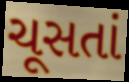
ચૂસતાં